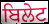
ਬਿਲੇਟ